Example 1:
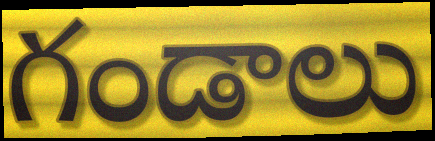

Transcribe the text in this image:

గండాలు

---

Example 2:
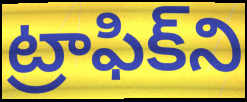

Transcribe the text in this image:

ట్రాఫిక్‌ని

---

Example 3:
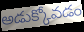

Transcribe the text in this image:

అడుక్కోవడం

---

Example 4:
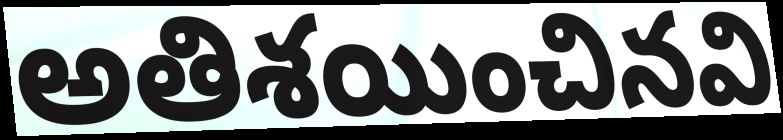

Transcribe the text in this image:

అతిశయించినవి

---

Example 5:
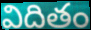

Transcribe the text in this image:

విదితం